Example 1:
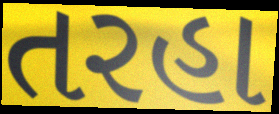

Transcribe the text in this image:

તરહા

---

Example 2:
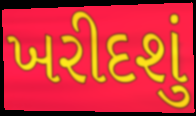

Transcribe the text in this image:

ખરીદશું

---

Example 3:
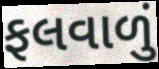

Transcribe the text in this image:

ફલવાળું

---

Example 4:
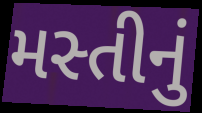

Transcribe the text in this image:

મસ્તીનું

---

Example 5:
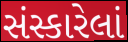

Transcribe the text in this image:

સંસ્કારેલાં